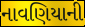
નાવણિયાની